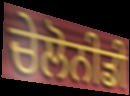
ਚੇਲੋਨੀਡੀ